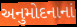
અનુમોદનાનાં